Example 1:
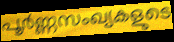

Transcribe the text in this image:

പൂർണ്ണസംഖ്യകളുടെ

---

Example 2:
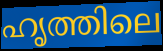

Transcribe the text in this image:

ഹൃത്തിലെ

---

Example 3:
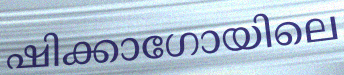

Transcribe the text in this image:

ഷിക്കാഗോയിലെ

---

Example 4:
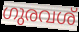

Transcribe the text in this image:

ഗുരവശ്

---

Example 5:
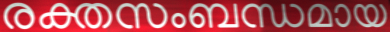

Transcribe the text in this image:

രക്തസംബന്ധമായ